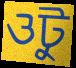
ওটু